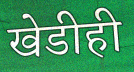
खेडीही